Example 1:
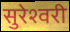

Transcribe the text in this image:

सुरेश्वरी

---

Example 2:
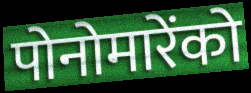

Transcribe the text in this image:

पोनोमारेंको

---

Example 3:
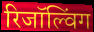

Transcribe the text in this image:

रिजॉल्विंग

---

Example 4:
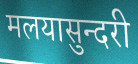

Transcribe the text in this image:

मलयासुन्दरी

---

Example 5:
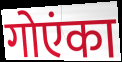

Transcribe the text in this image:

गोएंका